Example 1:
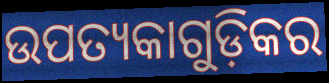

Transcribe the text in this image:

ଉପତ୍ୟକାଗୁଡ଼ିକର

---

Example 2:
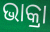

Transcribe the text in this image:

ଭାକ୍ରା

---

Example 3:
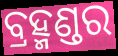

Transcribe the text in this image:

ବ୍ରହ୍ମଣ୍ଡର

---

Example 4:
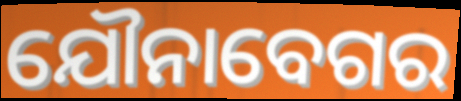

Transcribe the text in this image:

ଯୌନାବେଗର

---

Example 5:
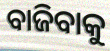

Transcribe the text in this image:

ବାଜିବାକୁ